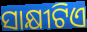
ସାକ୍ଷୀଟିଏ